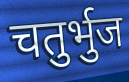
चतुर्भुज